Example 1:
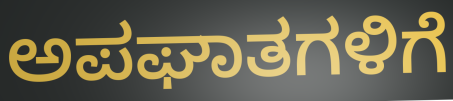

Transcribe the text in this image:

ಅಪಘಾತಗಳಿಗೆ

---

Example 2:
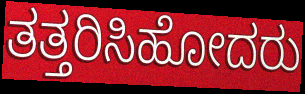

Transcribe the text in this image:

ತತ್ತರಿಸಿಹೋದರು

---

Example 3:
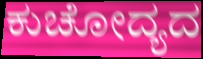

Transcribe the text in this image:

ಕುಚೋದ್ಯದ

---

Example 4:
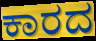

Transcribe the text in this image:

ಕಾರದ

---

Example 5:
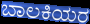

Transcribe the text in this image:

ಬಾಲಕಿಯರ